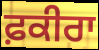
ਫ਼ਕੀਰਾ